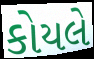
કોયલે